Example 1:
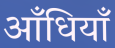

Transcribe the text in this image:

आँधियाँ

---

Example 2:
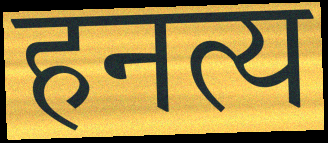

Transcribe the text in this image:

हनत्य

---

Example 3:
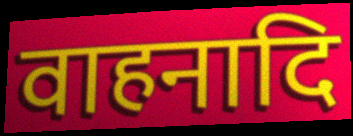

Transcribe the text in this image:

वाहनादि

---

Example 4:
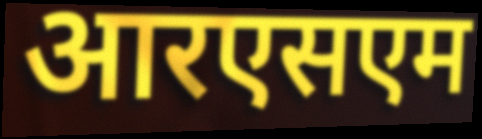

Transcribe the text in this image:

आरएसएम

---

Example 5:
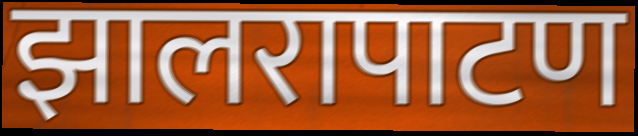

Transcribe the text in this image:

झालरापाटण